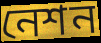
নেশন